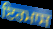
ਇਰਮਾਸ